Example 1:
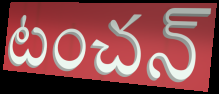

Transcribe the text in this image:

టంచన్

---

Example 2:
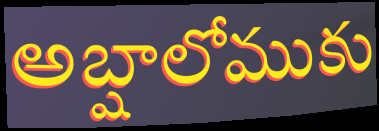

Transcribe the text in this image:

అబ్షాలోముకు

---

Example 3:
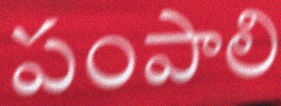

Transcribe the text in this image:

పంపాలి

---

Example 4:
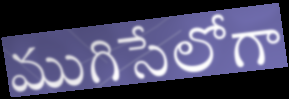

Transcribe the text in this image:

ముగిసేలోగా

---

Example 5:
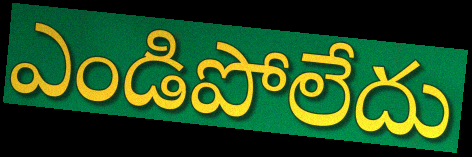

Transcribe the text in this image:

ఎండిపోలేదు